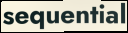
sequential